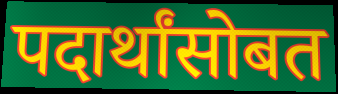
पदार्थांसोबत